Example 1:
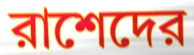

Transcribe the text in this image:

রাশেদের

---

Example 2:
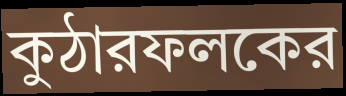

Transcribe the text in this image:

কুঠারফলকের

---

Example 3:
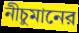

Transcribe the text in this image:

নীচুমানের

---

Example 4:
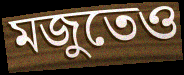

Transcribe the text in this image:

মজুতেও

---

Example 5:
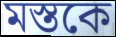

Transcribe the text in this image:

মস্তকে